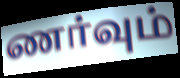
ணர்வும்